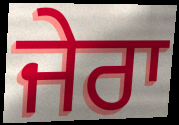
ਜੇਰਾ